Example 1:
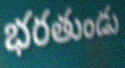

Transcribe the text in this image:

భరతుండు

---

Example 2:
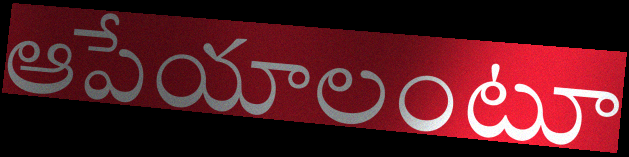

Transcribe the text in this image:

ఆపేయాలంటూ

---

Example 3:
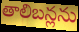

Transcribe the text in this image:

తాలిబన్లను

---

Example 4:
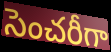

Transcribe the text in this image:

సెంచరీగా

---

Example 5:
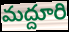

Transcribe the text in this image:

మద్దూరి